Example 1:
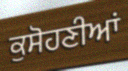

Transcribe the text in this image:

ਕੁਸੋਹਣੀਆਂ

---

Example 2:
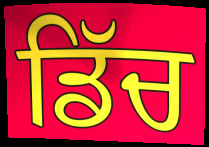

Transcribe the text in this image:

ਡਿੱਚ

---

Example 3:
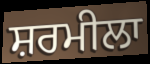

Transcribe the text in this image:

ਸ਼ਰਮੀਲਾ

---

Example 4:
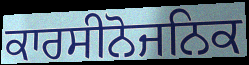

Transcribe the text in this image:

ਕਾਰਸੀਨੋਜਨਿਕ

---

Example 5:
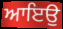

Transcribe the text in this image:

ਆਇਉ